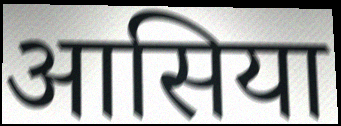
आसिया